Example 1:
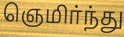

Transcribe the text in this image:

ஞெமிர்ந்து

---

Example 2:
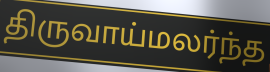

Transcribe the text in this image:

திருவாய்மலர்ந்த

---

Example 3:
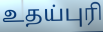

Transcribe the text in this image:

உதய்புரி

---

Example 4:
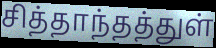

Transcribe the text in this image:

சித்தாந்தத்துள்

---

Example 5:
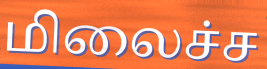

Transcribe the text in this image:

மிலைச்ச